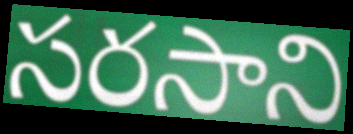
సరసాని